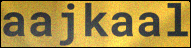
aajkaal